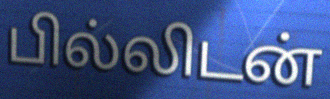
பில்லிடன்